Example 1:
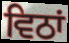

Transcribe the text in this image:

ਵਿਠਾਂ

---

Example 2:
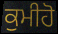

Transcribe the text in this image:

ਕੁਮੀਹੋ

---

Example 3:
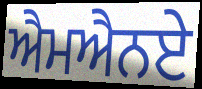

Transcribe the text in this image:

ਐਮਐਨਏ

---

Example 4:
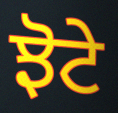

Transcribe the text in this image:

ਝੋਟੇ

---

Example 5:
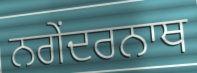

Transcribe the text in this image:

ਨਗੇਂਦਰਨਾਥ